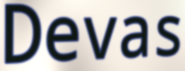
Devas